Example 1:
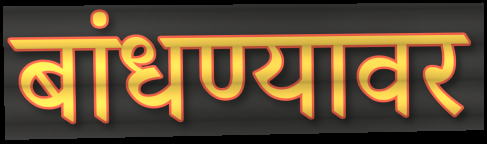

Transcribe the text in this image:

बांधण्यावर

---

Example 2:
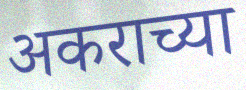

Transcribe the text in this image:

अकराच्या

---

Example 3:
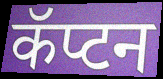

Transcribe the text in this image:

कॅप्टन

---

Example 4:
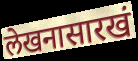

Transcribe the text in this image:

लेखनासारखं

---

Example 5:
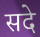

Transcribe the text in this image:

सदे